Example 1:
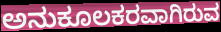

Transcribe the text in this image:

ಅನುಕೂಲಕರವಾಗಿರುವ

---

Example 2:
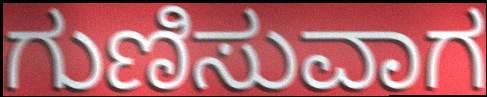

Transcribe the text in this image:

ಗುಣಿಸುವಾಗ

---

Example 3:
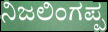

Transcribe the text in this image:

ನಿಜಲಿಂಗಪ್ಪ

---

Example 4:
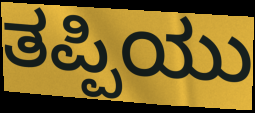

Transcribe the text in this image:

ತಪ್ಪಿಯು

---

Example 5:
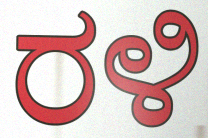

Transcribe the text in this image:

ರಳಿ